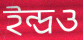
ইন্দ্রও